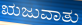
ಋಜುವಾತು